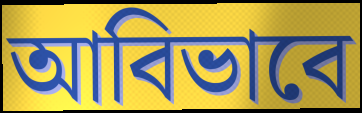
আবিভাবে